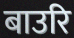
बाउरि